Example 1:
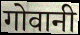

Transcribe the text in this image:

गोवानी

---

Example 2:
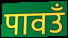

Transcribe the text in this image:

पावउँ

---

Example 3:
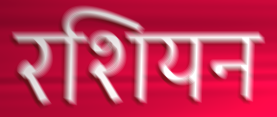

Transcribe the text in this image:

रशियन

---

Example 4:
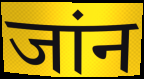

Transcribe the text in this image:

जांन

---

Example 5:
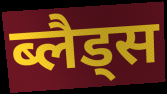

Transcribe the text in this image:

ब्लैड्स